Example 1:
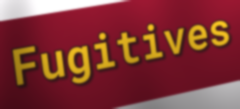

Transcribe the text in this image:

Fugitives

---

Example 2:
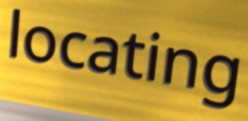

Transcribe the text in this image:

locating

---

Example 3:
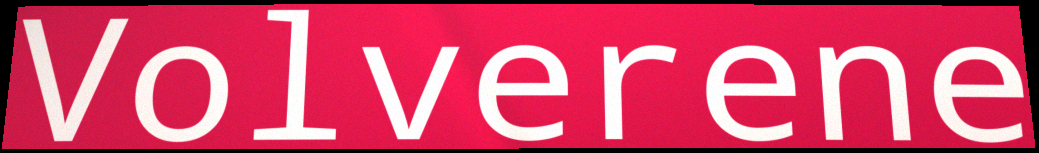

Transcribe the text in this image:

Volverene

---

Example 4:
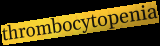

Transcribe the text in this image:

thrombocytopenia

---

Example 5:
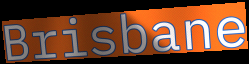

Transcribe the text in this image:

Brisbane